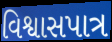
વિશ્વાસપાત્ર